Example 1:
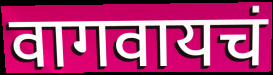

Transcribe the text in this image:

वागवायचं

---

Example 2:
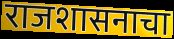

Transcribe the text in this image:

राजशासनाचा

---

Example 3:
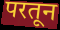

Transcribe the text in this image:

परतून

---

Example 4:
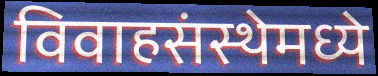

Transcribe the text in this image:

विवाहसंस्थेमध्ये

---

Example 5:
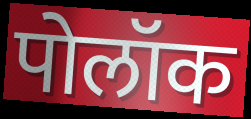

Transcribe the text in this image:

पोलॉक